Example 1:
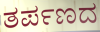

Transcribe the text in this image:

ತರ್ಪಣದ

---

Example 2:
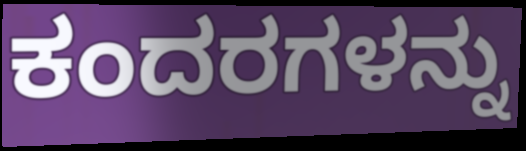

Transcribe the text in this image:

ಕಂದರಗಳನ್ನು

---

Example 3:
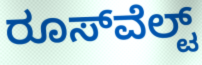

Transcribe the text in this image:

ರೂಸ್‍ವೆಲ್ಟ್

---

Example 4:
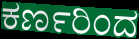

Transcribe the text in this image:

ಕರ್ಣರಿಂದ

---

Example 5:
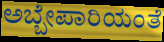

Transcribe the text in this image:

ಅಬ್ಬೇಪಾರಿಯಂತೆ